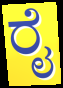
ರೈ